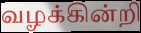
வழக்கின்றி